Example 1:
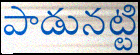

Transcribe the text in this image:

పాడునట్టి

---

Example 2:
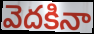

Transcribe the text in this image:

వెదకినా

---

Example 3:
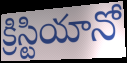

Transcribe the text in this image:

క్రిస్టియానో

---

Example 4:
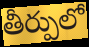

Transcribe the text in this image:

తీర్పులో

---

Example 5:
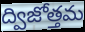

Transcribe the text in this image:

ద్విజోత్తమ